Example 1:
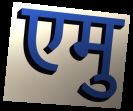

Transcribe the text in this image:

एमु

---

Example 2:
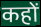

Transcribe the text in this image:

कहों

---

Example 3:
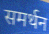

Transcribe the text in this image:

समर्थन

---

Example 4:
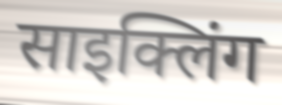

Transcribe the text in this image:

साइक्लिंग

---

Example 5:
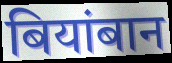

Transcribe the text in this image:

बियांबान